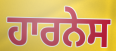
ਹਾਰਨੇਸ